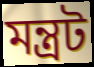
মন্ত্রট